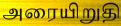
அரையிறுதி